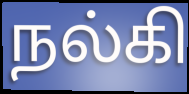
நல்கி